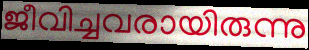
ജീവിച്ചവരായിരുന്നു